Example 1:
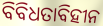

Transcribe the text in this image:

ବିବିଧତାବିହୀନ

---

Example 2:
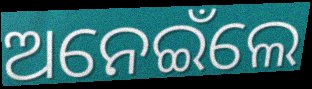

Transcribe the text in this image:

ଅନେଇଁଲେ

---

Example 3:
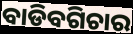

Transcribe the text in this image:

ବାଡିବଗିଚାର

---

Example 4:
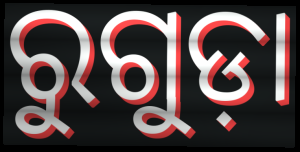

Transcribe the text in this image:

ରୁଗୁଡ଼ା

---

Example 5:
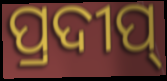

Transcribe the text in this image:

ପ୍ରଦୀପ୍